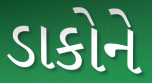
ડાકોને